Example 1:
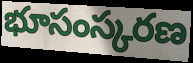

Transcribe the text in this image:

భూసంస్కరణ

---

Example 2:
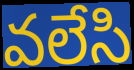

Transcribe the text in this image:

వలేసి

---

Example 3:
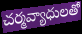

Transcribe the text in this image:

చర్మవ్యాధులతో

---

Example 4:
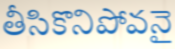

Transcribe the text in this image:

తీసికొనిపోవనై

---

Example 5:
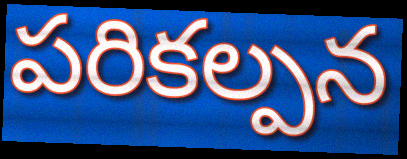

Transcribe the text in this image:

పరికల్పన